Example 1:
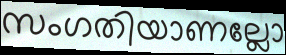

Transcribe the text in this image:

സംഗതിയാണല്ലോ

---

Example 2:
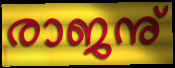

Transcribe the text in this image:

രാജനു്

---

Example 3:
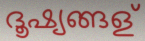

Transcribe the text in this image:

ദൂഷ്യങ്ങള്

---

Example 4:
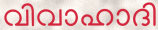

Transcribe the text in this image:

വിവാഹാദി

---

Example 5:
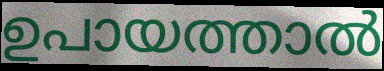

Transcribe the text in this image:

ഉപായത്താൽ